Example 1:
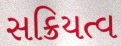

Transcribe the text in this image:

સક્રિયત્વ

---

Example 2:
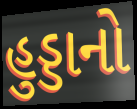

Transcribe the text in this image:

હુડ્ડાનો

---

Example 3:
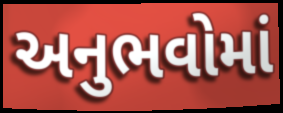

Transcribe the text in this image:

અનુભવોમાં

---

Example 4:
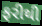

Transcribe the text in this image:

ફરીથી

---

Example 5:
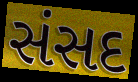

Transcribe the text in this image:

સંસદ